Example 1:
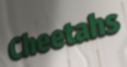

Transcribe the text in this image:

Cheetahs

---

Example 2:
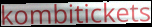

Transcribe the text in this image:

kombitickets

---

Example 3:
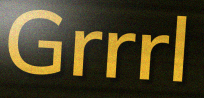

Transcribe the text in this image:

Grrrl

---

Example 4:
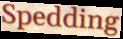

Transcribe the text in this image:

Spedding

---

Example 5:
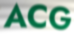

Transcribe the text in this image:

ACG